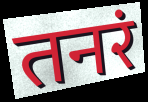
तनरं